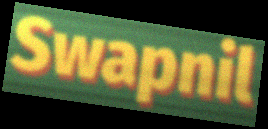
Swapnil